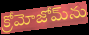
క్రోమోజోమ్‌ను